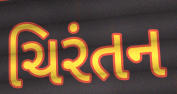
ચિરંતન